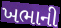
ખભાની